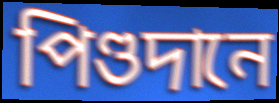
পিণ্ডদানে